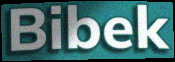
Bibek